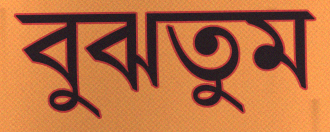
বুঝতুম